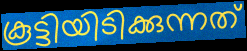
കൂട്ടിയിടിക്കുന്നത്